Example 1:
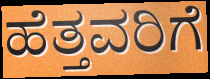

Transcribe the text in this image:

ಹೆತ್ತವರಿಗೆ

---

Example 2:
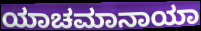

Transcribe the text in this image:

ಯಾಚಮಾನಾಯಾ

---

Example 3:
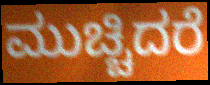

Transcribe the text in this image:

ಮುಚ್ಚಿದರೆ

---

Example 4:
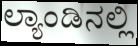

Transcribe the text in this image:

ಲ್ಯಾಂಡಿನಲ್ಲಿ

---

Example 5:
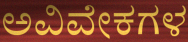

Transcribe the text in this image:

ಅವಿವೇಕಗಳ